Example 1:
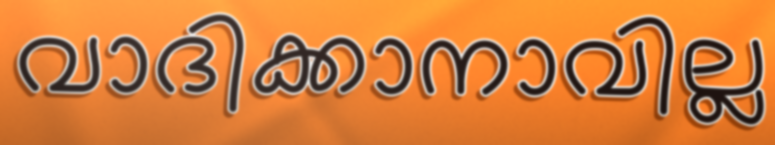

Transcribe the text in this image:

വാദിക്കാനാവില്ല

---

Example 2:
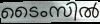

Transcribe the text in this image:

ടൈംസിൽ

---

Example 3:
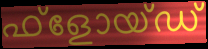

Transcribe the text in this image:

ഫ്ളോയ്ഡ്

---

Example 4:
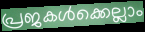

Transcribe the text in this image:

പ്രജകൾക്കെല്ലാം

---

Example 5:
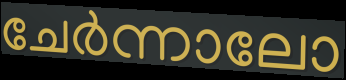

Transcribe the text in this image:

ചേർന്നാലോ